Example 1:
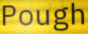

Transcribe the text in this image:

Pough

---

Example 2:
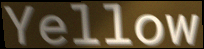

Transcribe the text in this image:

Yellow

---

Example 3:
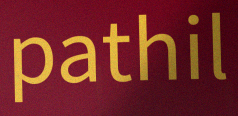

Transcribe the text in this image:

pathil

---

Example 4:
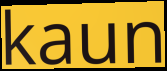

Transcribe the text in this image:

kaun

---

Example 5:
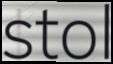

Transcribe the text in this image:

stol